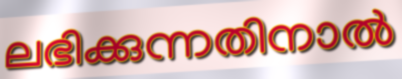
ലഭിക്കുന്നതിനാൽ